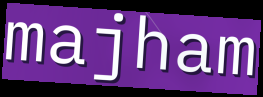
majham